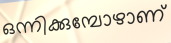
ഒന്നിക്കുമ്പോഴാണ്